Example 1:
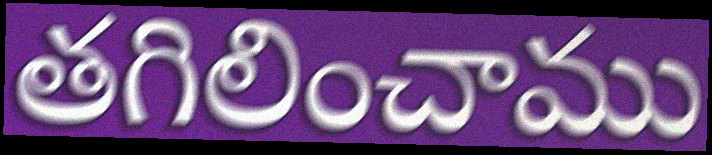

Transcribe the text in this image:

తగిలించాము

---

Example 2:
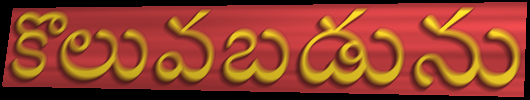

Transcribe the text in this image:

కొలువబడును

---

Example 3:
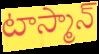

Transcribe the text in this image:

టాస్మాన్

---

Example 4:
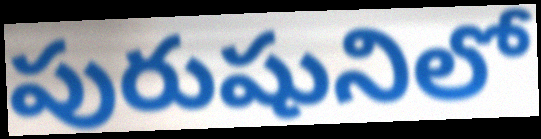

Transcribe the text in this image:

పురుషునిలో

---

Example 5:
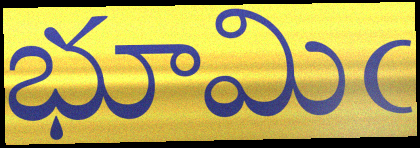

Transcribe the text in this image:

భూమిఁ